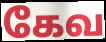
கேவ